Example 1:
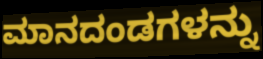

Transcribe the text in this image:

ಮಾನದಂಡಗಳನ್ನು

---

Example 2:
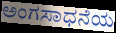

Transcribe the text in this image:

ಅಂಗಸಾಧನೆಯ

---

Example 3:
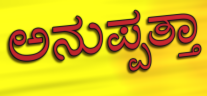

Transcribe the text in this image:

ಅನುಪ್ಪತ್ತಾ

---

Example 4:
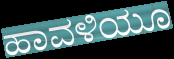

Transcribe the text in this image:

ಹಾವಳಿಯೂ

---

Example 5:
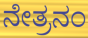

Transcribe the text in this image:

ನೇತ್ರನಂ